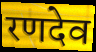
रणदेव